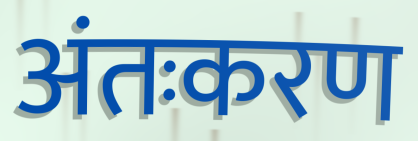
अंतःकरण